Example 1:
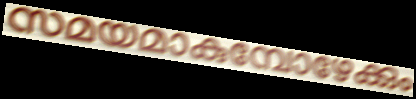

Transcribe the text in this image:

സമയമാകുമ്പോഴേക്കും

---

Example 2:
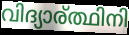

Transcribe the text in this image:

വിദ്യാര്ത്ഥിനി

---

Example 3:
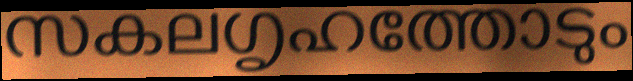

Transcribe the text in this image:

സകലഗൃഹത്തോടും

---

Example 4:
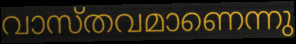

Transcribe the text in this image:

വാസ്തവമാണെന്നു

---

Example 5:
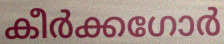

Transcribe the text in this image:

കീർക്കഗോർ